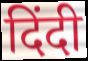
दिंदी